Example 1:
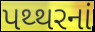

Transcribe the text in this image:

પથ્થરનાં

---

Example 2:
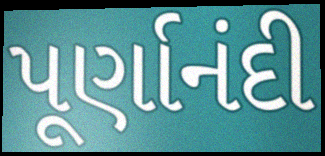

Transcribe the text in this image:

પૂર્ણાનંદી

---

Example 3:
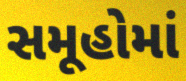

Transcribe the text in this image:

સમૂહોમાં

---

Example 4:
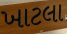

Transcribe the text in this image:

ખાટલા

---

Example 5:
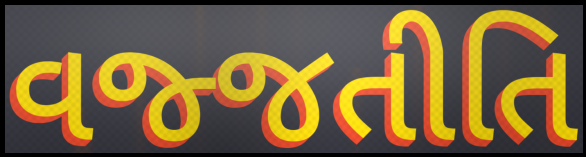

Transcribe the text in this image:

વજ્જતીતિ